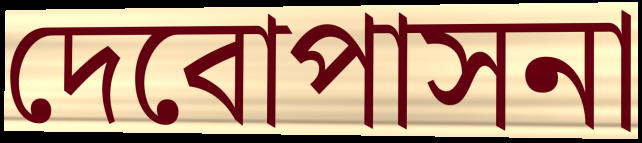
দেবোপাসনা